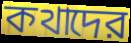
কথাদের